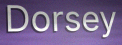
Dorsey